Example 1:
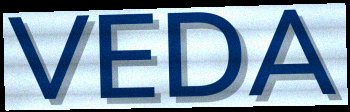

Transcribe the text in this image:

VEDA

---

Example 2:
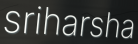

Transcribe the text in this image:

sriharsha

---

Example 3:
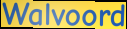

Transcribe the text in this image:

Walvoord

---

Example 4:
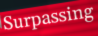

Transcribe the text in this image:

Surpassing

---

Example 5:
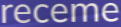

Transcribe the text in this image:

receme